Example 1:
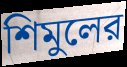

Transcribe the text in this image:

শিমুলের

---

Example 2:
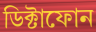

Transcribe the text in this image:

ডিক্টাফোন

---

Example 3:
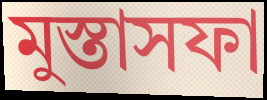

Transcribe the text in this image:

মুস্তাসফা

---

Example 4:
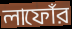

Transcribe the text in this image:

লাফোঁর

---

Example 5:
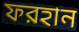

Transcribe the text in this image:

ফরহান